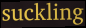
suckling